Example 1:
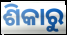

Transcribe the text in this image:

ଶିକାରୁ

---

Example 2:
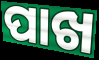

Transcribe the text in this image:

ପାଖ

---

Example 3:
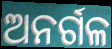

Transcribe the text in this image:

ଅନର୍ଗଳ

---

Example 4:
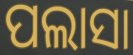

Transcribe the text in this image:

ପଲାସା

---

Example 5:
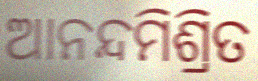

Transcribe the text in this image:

ଆନନ୍ଦମିଶ୍ରିତ